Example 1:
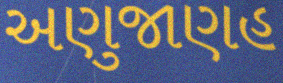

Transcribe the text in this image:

અણુજાણહ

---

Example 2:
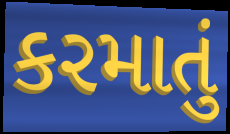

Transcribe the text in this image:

કરમાતું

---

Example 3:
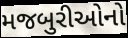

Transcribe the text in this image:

મજબુરીઓનો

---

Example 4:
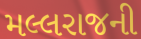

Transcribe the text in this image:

મલ્લરાજની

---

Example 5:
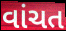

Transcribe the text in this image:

વાંચત